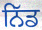
ਨਿੱਡ